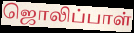
ஜொலிப்பாள்